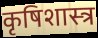
कृषिशास्त्र